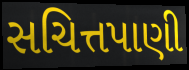
સચિત્તપાણી